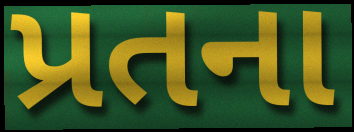
પ્રતના